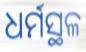
ଧର୍ମସ୍ଥଳ